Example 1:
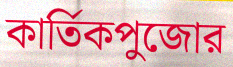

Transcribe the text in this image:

কার্তিকপুজোর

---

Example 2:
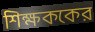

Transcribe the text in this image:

শিক্ষককের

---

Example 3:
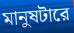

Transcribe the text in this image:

মানুষটারে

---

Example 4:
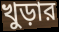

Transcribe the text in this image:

খুড়ার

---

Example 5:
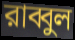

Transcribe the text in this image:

রাব্বুল